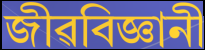
জীৱবিজ্ঞানী